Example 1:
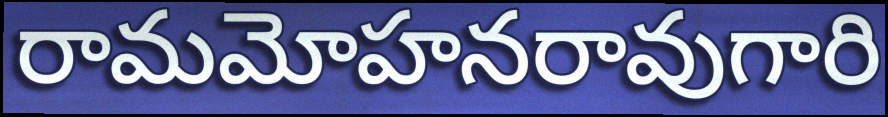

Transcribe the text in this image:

రామమోహనరావుగారి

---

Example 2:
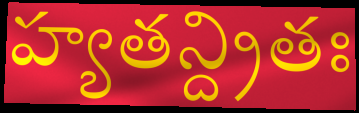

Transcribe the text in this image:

హ్యతన్ద్రితః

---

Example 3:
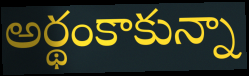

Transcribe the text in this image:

అర్థంకాకున్నా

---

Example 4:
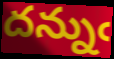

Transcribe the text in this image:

దన్నుఁ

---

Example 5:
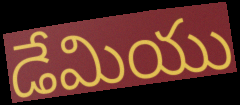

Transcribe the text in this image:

డేమియు